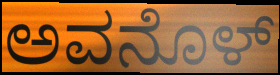
ಅವನೊಳ್